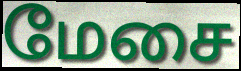
மேசை